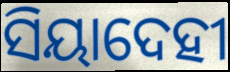
ସିୟାଦେହୀ